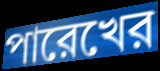
পারেখের